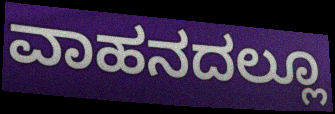
ವಾಹನದಲ್ಲೂ